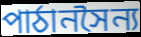
পাঠানসৈন্য